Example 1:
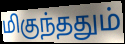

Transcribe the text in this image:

மிகுந்ததும்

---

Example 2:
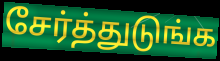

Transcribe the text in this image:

சேர்த்துடுங்க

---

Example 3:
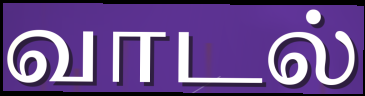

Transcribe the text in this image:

வாடல்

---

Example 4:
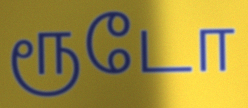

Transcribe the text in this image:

ரூடோ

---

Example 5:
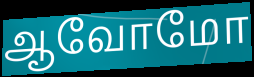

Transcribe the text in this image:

ஆவோமோ